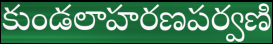
కుండలాహరణపర్వణి